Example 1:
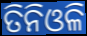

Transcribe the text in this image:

ତିନିଓଳି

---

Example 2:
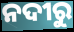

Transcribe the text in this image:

ନଦୀରୁ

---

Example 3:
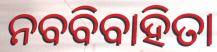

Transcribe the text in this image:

ନବବିବାହିତା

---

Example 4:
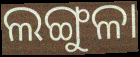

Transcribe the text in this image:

ଲଙ୍ଗୁଳା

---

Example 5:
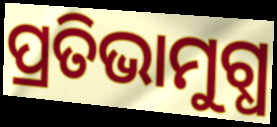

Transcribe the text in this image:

ପ୍ରତିଭାମୁଗ୍ଧ